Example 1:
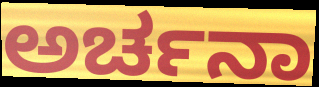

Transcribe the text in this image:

ಅರ್ಚನಾ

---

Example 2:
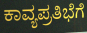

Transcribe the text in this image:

ಕಾವ್ಯಪ್ರತಿಭೆಗೆ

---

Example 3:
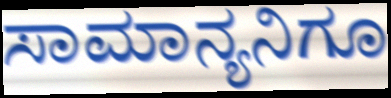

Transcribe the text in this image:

ಸಾಮಾನ್ಯನಿಗೂ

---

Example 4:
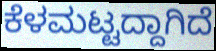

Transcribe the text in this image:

ಕೆಳಮಟ್ಟದ್ದಾಗಿದೆ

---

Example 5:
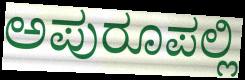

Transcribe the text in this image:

ಅಪುರೂಪಲ್ಲಿ